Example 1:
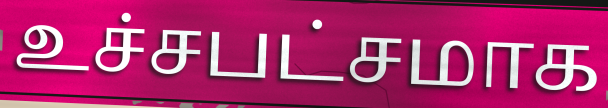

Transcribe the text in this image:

உச்சபட்சமாக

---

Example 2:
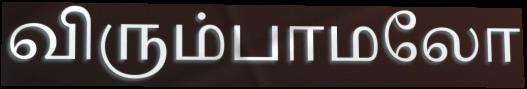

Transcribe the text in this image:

விரும்பாமலோ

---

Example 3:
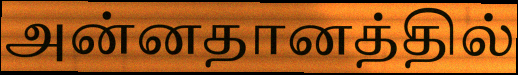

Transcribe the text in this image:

அன்னதானத்தில்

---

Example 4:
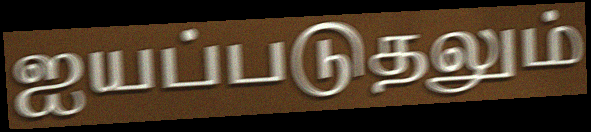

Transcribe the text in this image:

ஐயப்படுதலும்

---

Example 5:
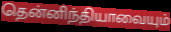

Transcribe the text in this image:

தென்னிந்தியாவையும்